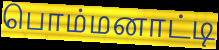
பொம்மனாட்டி